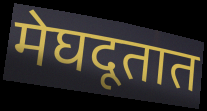
मेघदूतात